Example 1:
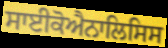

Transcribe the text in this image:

ਸਾਈਕੋਐਨਾਲਿਸਿਸ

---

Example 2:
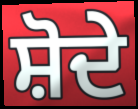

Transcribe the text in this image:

ਸ਼ੋਦੇ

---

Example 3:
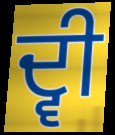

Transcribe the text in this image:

ਦ੍ਵੀ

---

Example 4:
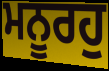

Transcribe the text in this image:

ਮਨੂਰਹੁ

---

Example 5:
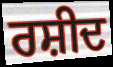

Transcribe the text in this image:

ਰਸ਼ੀਦ